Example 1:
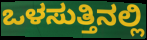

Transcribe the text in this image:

ಒಳಸುತ್ತಿನಲ್ಲಿ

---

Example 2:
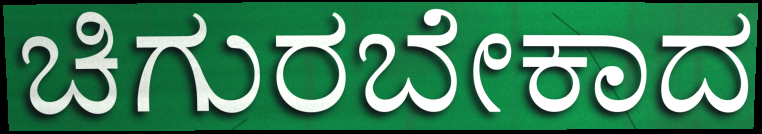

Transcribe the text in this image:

ಚಿಗುರಬೇಕಾದ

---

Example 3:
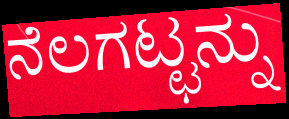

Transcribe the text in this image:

ನೆಲಗಟ್ಟನ್ನು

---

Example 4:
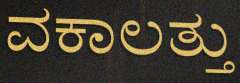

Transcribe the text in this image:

ವಕಾಲತ್ತು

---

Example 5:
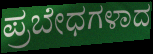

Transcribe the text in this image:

ಪ್ರಬೇಧಗಳಾದ